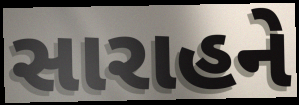
સારાહને